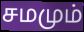
சமமும்